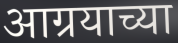
आग्रयाच्या